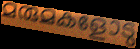
മരുമകളോടു